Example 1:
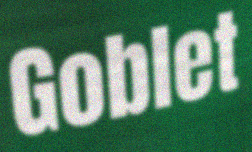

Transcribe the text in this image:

Goblet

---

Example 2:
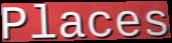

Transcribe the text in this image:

Places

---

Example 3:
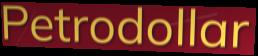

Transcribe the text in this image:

Petrodollar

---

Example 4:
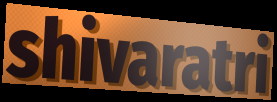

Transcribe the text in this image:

shivaratri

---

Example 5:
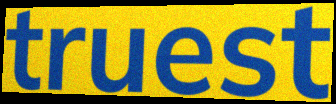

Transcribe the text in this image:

truest